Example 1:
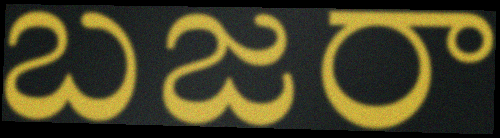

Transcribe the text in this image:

బజరా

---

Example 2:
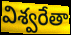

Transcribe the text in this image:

విశ్వరేతా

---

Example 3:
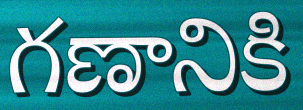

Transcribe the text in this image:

గణానికి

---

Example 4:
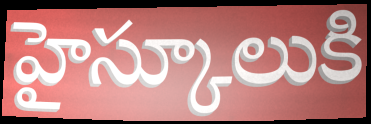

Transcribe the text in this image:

హైస్కూలుకి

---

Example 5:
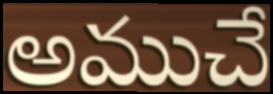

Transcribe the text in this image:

అముచే